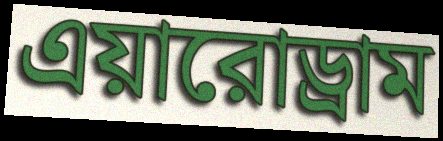
এয়ারোড্রাম